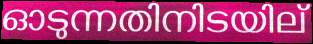
ഓടുന്നതിനിടയില്